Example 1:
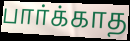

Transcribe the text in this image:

பார்க்காத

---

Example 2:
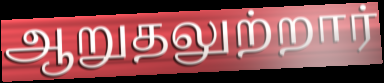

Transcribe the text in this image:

ஆறுதலுற்றார்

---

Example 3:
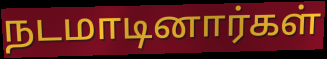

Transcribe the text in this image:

நடமாடினார்கள்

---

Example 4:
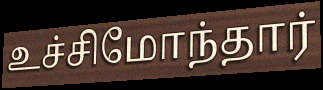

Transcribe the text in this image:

உச்சிமோந்தார்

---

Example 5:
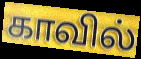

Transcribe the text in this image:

காவில்